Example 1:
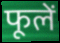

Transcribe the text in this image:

फूलें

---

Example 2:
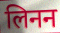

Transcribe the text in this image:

लिनन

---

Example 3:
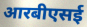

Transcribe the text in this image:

आरबीएसई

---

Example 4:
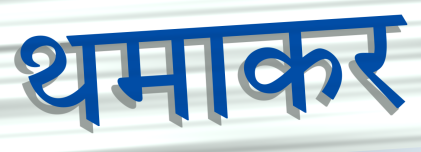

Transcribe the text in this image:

थमाकर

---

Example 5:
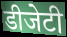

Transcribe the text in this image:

डीजेटी